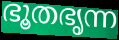
ഭൂതഭൃന്ന